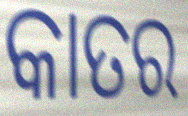
କାତର